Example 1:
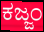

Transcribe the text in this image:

ಕಜ್ಜಂ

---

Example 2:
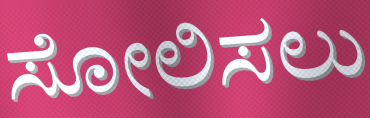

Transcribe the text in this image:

ಸೋಲಿಸಲು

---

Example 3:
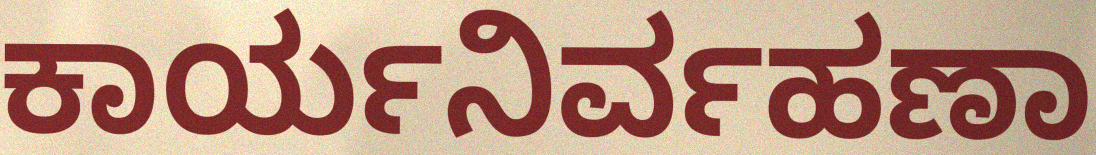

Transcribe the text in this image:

ಕಾರ್ಯನಿರ್ವಹಣಾ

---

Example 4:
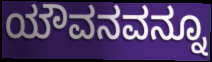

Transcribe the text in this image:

ಯೌವನವನ್ನೂ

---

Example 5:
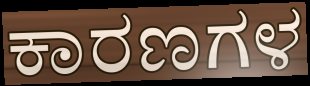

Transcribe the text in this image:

ಕಾರಣಗಳ